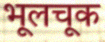
भूलचूक